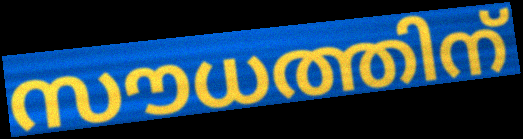
സൗധത്തിന്